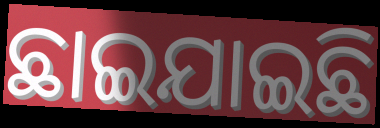
ଛାଇଯାଇଛି